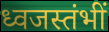
ध्वजस्तंभीं